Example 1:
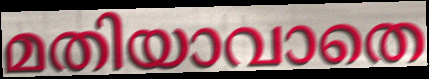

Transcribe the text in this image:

മതിയാവാതെ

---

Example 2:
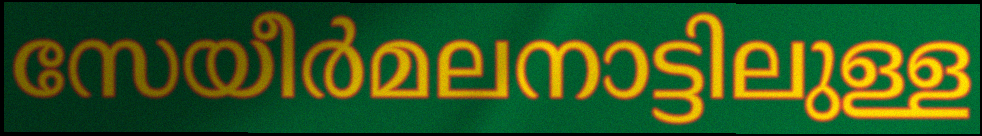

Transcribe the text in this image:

സേയീർമലനാട്ടിലുള്ള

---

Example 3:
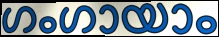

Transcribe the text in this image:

ഗംഗായാം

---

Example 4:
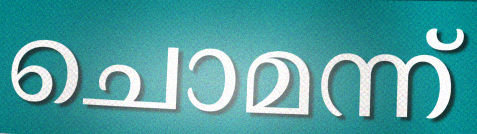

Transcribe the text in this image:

ചൊമന്ന്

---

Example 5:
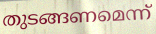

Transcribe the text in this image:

തുടങ്ങണമെന്ന്